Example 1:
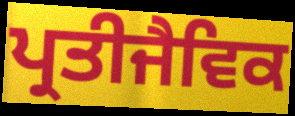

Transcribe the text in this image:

ਪ੍ਰਤੀਜੈਵਿਕ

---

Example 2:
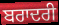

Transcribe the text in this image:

ਬਰਾਦਰੀ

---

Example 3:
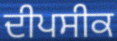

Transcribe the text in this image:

ਦੀਪਸੀਕ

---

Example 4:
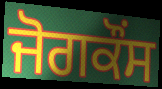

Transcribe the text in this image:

ਜੋਗਕੌਂਸ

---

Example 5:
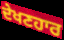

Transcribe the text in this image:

ਦੇਖਣਹਾਰ